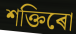
শক্তিৰো